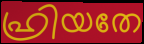
ഹ്രിയതേ